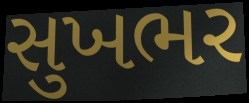
સુખભર